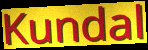
Kundal